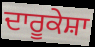
ਦਾਰੂਕੇਸ਼ਾ